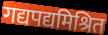
गद्यपद्यमिश्रित